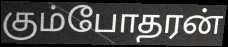
கும்போதரன்